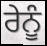
ਰੇਨੂੰ